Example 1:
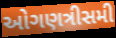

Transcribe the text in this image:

ઓગણત્રીસમી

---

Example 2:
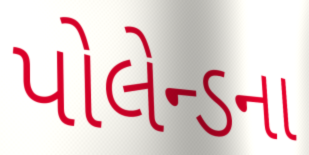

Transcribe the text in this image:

પોલેન્ડના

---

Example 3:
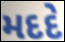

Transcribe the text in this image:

મદદે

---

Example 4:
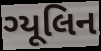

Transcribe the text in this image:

ગ્યૂલિન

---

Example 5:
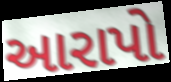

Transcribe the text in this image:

આરાપો